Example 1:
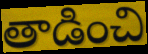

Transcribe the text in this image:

తాడించి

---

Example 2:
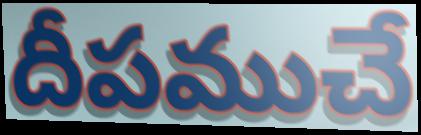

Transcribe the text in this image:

దీపముచే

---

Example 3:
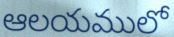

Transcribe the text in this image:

ఆలయములో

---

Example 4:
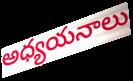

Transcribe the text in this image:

అధ్యయనాలు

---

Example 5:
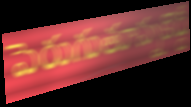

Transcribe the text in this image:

పెరుగుతూన్నకొద్దీ